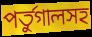
পর্তুগালসহ